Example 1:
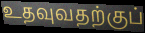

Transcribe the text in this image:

உதவுவதற்குப்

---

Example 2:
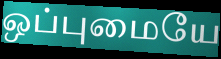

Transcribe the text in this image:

ஒப்புமையே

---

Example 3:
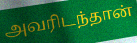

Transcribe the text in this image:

அவரிடந்தான்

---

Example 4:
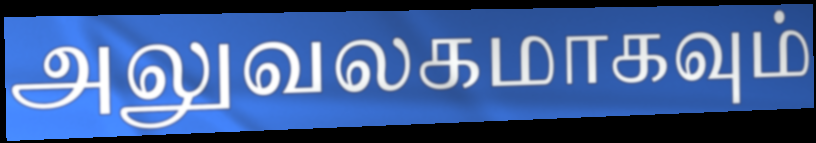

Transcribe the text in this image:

அலுவலகமாகவும்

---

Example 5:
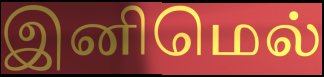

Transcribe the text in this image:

இனிமெல்